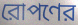
রোপণের